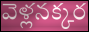
వెళ్లనక్కర